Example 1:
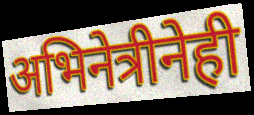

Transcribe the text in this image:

अभिनेत्रीनेही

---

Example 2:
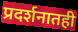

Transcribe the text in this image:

प्रदर्शनातही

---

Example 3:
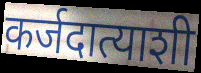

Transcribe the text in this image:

कर्जदात्याशी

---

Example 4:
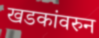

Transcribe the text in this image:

खडकांवरुन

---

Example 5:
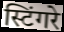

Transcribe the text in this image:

स्टिंगरे